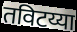
तविटय्या